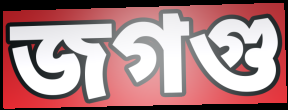
জগগু